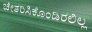
ಚೇತರಿಸಿಕೊಂಡಿರಲಿಲ್ಲ